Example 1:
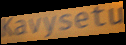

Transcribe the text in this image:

Kavysetu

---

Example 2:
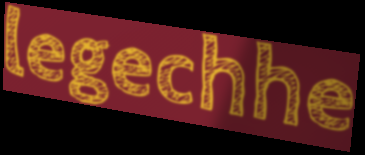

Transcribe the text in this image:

legechhe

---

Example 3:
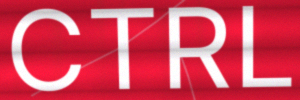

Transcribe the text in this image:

CTRL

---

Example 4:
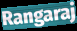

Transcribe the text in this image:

Rangaraj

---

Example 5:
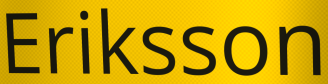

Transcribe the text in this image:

Eriksson